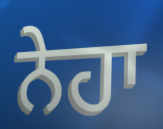
ਨੇਹਾ